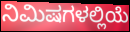
ನಿಮಿಷಗಳಲ್ಲಿಯೆ